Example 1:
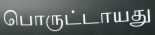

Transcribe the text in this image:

பொருட்டாயது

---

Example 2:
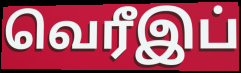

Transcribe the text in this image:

வெரீஇப்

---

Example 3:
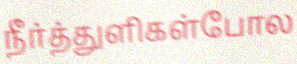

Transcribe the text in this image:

நீர்த்துளிகள்போல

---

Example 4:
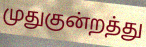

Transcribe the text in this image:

முதுகுன்றத்து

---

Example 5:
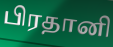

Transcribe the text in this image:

பிரதானி